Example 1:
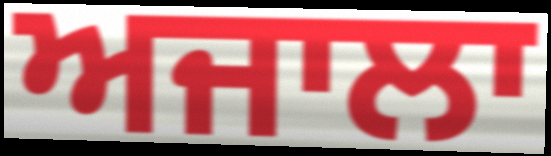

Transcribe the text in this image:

ਅਜਾਲਾ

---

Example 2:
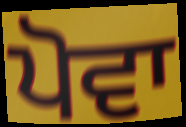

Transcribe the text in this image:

ਪੋਵਾ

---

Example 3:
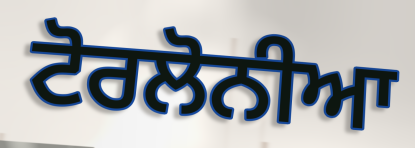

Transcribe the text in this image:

ਟੋਰਲੋਨੀਆ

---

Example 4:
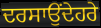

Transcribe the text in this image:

ਦਰਸਾਉਂਦੇਹਰੇ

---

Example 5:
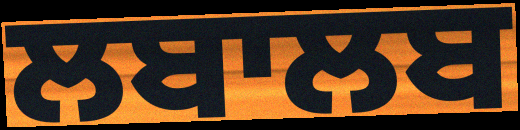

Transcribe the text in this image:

ਲਬਾਲਬ